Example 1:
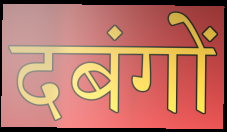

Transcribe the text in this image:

दबंगों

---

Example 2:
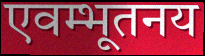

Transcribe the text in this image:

एवम्भूतनय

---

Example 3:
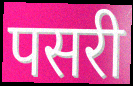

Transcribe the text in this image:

पसरी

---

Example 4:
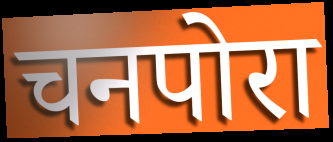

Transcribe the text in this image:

चनपोरा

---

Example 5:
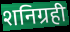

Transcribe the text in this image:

शनिग्रही